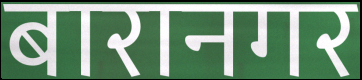
बारानगर